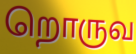
றொருவ